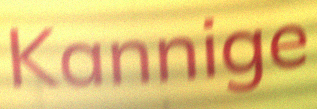
Kannige